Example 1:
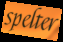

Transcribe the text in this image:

spelter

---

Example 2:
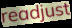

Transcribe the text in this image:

readjust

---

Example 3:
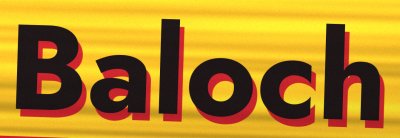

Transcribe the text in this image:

Baloch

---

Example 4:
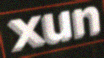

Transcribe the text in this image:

xun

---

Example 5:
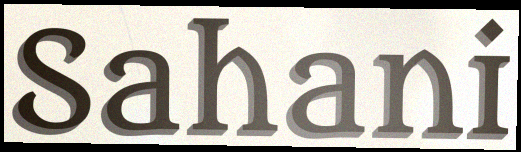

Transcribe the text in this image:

Sahani